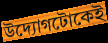
উদ্যোগটোকেই